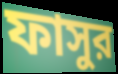
ফাসুর